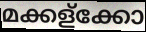
മക്കള്ക്കോ